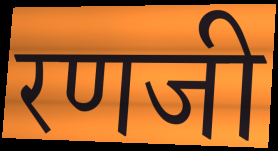
रणजी